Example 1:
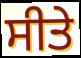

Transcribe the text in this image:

ਸੀਤੇ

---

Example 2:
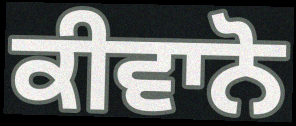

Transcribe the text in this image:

ਕੀਵਾਨੋ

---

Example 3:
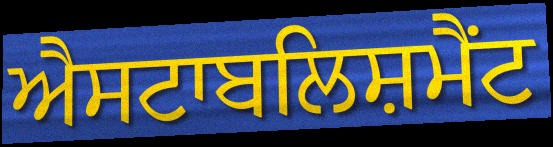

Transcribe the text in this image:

ਐਸਟਾਬਲਿਸ਼ਮੈਂਟ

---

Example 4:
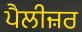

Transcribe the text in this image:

ਪੈਲੀਜ਼ਰ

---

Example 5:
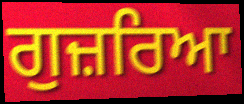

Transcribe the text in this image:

ਗੁਜ਼ਰਿਆ